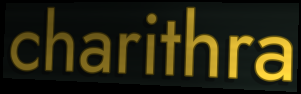
charithra